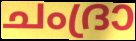
ചംദ്രാ